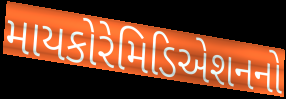
માયકોરેમિડિએશનનો